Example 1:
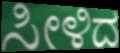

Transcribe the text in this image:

ಸೀಳಿದ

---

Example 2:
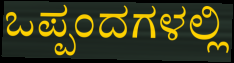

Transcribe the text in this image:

ಒಪ್ಪಂದಗಳಲ್ಲಿ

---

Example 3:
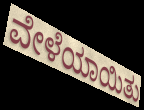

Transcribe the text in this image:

ವೇಳೆಯಾಯಿತು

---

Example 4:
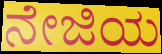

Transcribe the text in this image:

ನೇಜಿಯ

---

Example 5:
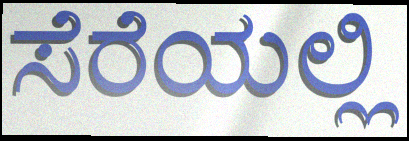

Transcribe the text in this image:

ಸೆರೆಯಲ್ಲಿ